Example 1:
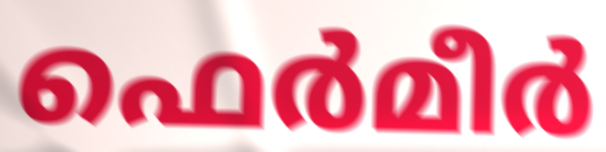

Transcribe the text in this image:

ഫെർമീർ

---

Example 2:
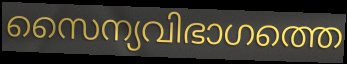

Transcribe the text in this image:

സൈന്യവിഭാഗത്തെ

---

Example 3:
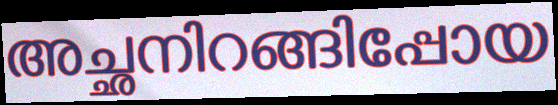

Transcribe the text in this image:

അച്ഛനിറങ്ങിപ്പോയ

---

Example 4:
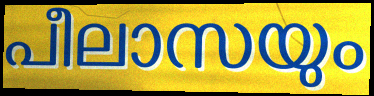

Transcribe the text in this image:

പീലാസയും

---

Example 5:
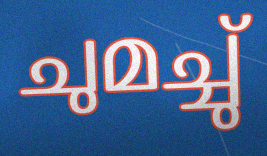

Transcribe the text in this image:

ചുമച്ചു്